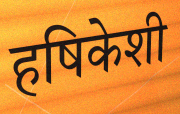
हषिकेशी